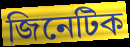
জিনেটিক